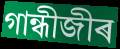
গান্ধীজীৰ